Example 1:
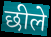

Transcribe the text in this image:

छीले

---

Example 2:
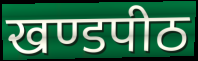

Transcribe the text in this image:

खण्डपीठ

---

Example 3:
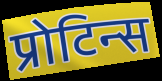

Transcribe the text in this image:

प्रोटिन्स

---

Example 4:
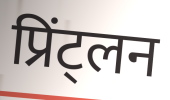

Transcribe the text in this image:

प्रिंट्लन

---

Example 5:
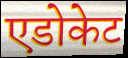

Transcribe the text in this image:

एडोकेट